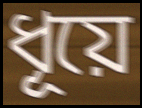
ধূয়ে